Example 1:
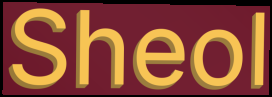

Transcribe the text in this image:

Sheol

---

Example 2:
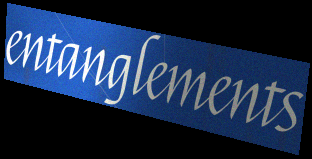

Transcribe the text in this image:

entanglements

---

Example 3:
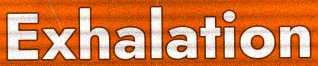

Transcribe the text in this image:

Exhalation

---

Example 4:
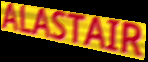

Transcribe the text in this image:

ALASTAIR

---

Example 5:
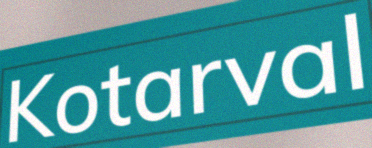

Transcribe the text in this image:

Kotarval